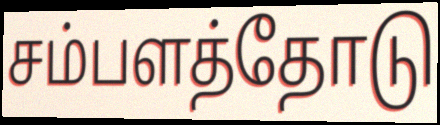
சம்பளத்தோடு